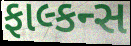
ફાલ્કન્સ